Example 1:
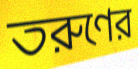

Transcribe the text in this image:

তরুণের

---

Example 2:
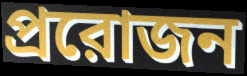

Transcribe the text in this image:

প্ররোজন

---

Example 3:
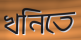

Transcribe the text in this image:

খনিতে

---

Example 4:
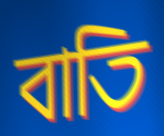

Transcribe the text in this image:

বাতি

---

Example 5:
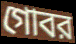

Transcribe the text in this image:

গোবর